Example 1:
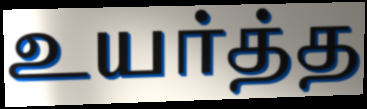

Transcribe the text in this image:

உயர்த்த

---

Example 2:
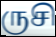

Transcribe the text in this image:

ருசி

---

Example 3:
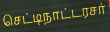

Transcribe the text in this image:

செட்டிநாட்டரசர்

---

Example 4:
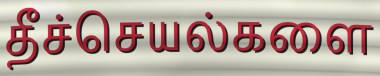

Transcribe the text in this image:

தீச்செயல்களை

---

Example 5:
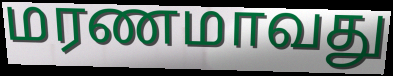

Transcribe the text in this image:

மரணமாவது